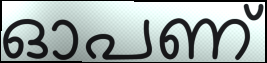
ഓപണ്